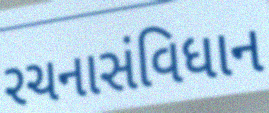
રચનાસંવિધાન